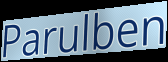
Parulben